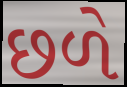
છળે